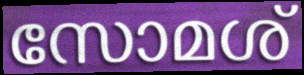
സോമശ്